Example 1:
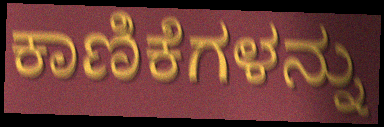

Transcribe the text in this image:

ಕಾಣಿಕೆಗಳನ್ನು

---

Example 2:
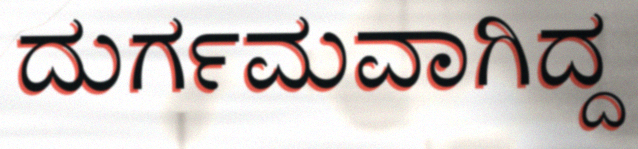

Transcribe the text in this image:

ದುರ್ಗಮವಾಗಿದ್ದ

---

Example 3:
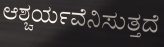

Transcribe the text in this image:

ಆಶ್ಚರ್ಯವೆನಿಸುತ್ತದೆ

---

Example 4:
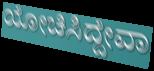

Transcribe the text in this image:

ಯೋಚಿಸಿದ್ದೇವಾ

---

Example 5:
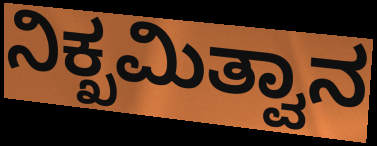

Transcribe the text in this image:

ನಿಕ್ಖಮಿತ್ವಾನ